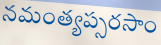
నమంత్యప్సరసాం